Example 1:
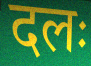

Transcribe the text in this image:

दलः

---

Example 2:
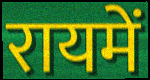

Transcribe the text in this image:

रायमें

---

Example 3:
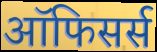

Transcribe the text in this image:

ऑफिसर्स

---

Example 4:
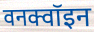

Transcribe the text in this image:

वनक्वॉइन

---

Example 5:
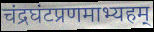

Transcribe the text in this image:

चंद्रघंटप्रणमाभ्यहम्